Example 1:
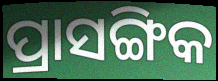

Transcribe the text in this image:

ପ୍ରାସଙ୍ଗିକ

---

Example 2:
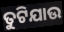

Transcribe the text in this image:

ତୁଟିଯାଉ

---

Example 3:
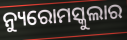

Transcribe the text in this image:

ନ୍ୟୁରୋମସ୍କୁଲାର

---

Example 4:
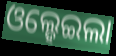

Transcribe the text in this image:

ଓଲ୍ହେଇଲା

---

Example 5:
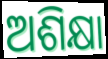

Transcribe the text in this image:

ଅଶିକ୍ଷା